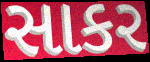
સાકર